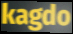
kagdo